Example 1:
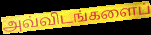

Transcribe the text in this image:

அவ்விடங்களைப்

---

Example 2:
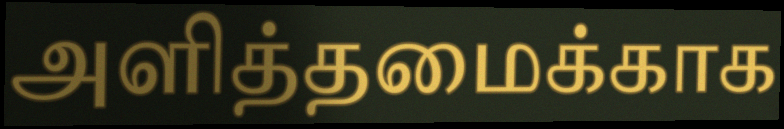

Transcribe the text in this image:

அளித்தமைக்காக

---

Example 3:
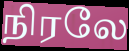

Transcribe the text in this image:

நிரலே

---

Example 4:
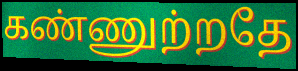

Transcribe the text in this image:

கண்ணுற்றதே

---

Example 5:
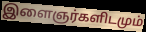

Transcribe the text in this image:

இளைஞர்களிடமும்